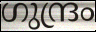
ഗുന്ദ്രം